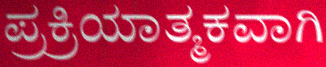
ಪ್ರಕ್ರಿಯಾತ್ಮಕವಾಗಿ